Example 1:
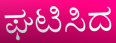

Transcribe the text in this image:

ಘಟಿಸಿದ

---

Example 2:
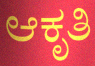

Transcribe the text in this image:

ಆಕೃತಿ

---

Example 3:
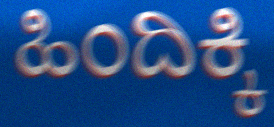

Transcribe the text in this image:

ಹಿಂದಿಕ್ಕಿ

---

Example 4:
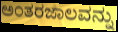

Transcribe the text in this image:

ಅಂತರಜಾಲವನ್ನು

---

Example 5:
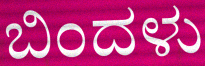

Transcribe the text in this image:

ಬಿಂದಳು